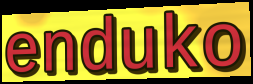
enduko